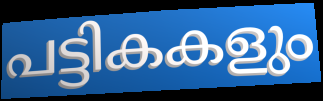
പട്ടികകളും